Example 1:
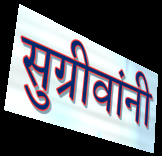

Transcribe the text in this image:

सुग्रीवांनी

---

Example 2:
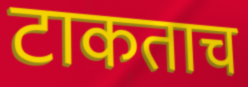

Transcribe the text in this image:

टाकताच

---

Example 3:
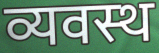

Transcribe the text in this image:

व्यवस्थ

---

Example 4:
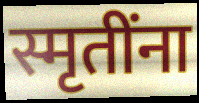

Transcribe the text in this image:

स्मृतींना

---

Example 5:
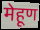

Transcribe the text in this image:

मेहूण